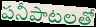
పనీపాటలతో